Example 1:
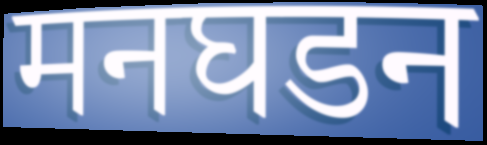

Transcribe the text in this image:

मनघडन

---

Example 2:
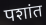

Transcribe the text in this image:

पशांत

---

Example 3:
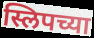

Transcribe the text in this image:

स्लिपच्या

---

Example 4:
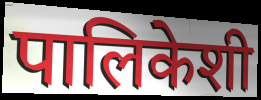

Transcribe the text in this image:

पालिकेशी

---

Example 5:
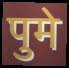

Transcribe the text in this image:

पुमे